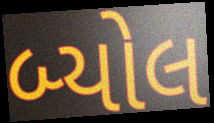
બ્યોલ